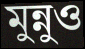
মুন্নুও